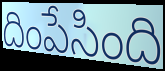
దింపేసింది